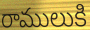
రాములుకి